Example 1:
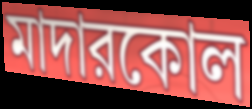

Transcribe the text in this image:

মাদারকোল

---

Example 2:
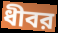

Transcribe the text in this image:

ধীবর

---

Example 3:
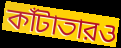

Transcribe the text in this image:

কাঁটাতারও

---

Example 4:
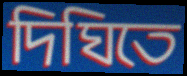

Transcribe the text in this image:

দিঘিতে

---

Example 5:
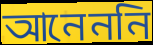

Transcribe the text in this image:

আনেননি